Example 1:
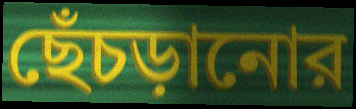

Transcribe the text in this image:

ছেঁচড়ানোর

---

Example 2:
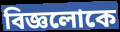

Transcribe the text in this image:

বিজ্ঞলোকে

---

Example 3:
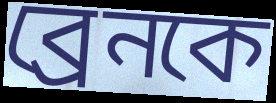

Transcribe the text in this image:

ব্রেনকে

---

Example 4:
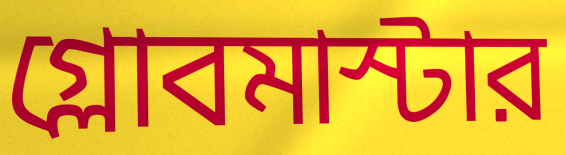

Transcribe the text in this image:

গ্লোবমাস্টার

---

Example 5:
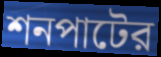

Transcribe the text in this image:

শনপাটের